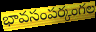
భావసంపర్కంగల